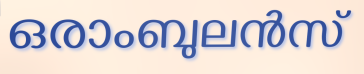
ഒരാംബുലൻസ്